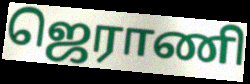
ஜெராணி